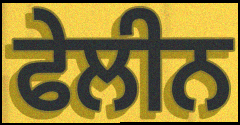
ਫੇਲੀਨ